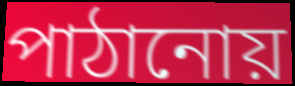
পাঠানোয়